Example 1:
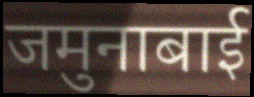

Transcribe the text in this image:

जमुनाबाई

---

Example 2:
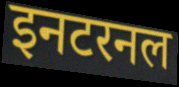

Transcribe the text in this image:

इनटरनल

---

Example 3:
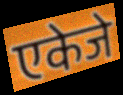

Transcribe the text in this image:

एकेजे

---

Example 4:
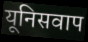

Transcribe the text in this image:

यूनिसवाप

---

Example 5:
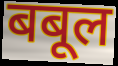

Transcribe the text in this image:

बबूल